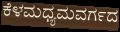
ಕೆಳಮಧ್ಯಮವರ್ಗದ